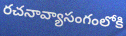
రచనావ్యాసంగంలోకి